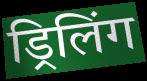
ड्रिलिंग